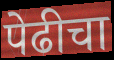
पेढीचा